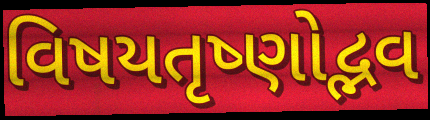
વિષયતૃષ્ણોદ્ભવ